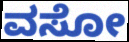
ವಸೋ